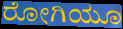
ರೋಗಿಯೂ